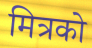
मित्रको